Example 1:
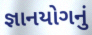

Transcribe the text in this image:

જ્ઞાનયોગનું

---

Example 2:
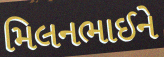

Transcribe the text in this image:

મિલનભાઈને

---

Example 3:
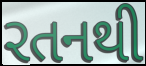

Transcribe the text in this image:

રતનથી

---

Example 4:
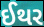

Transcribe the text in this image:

ઈથર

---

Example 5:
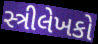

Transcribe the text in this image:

સ્ત્રીલેખકો